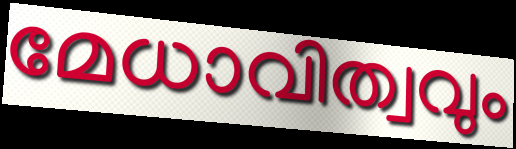
മേധാവിത്വവും